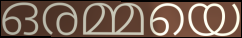
ഒരമ്മയെ